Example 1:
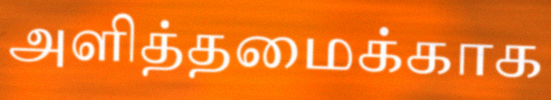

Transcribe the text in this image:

அளித்தமைக்காக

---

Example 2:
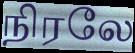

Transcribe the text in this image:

நிரலே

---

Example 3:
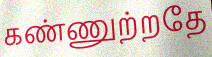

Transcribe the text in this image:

கண்ணுற்றதே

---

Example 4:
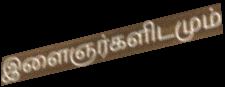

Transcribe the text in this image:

இளைஞர்களிடமும்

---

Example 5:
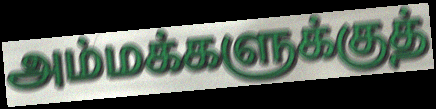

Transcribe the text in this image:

அம்மக்களுக்குத்